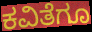
ಕವಿತೆಗೂ